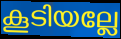
കൂടിയല്ലേ